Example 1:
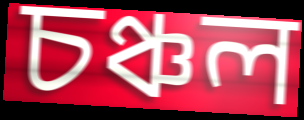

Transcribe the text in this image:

চঞ্চল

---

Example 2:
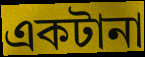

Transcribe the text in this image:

একটানা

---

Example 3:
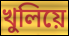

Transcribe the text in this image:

খুলিয়ে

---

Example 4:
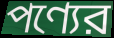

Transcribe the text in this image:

পণ্যের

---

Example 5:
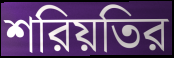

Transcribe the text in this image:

শরিয়তির